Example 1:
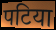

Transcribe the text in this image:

पटिया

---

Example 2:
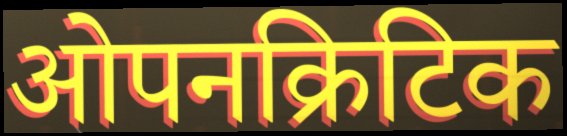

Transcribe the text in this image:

ओपनक्रिटिक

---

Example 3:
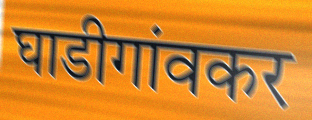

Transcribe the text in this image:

घाडीगांवकर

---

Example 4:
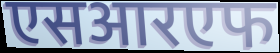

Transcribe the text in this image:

एसआरएफ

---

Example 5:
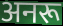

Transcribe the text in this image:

अनरू